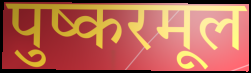
पुष्करमूल